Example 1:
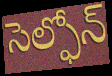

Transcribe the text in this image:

సెల్ఫోన్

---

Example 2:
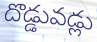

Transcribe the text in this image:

దొడ్డువడ్లు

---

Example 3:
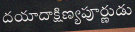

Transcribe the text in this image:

దయాదాక్షిణ్యపూర్ణుడు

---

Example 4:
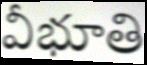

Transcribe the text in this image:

వీభూతి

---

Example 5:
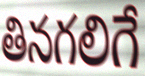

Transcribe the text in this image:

తినగలిగే